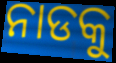
ନାଡକୁ